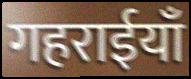
गहराईयाँ